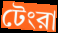
টেংরা